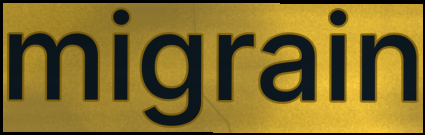
migrain